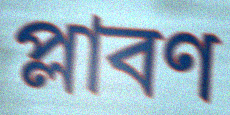
প্লাবণ